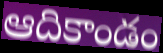
ఆదికాండం